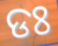
ଡଃ